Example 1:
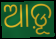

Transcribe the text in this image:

ଆଡ଼ୂ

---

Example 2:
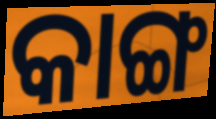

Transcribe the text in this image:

କାଙ୍ଗ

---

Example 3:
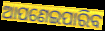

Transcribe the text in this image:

ଆପଣେଇପାରିବ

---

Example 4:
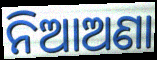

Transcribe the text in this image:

ନିଆଅଣା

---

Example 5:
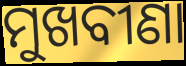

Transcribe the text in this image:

ମୁଖବୀଣା